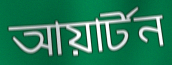
আয়ার্টন